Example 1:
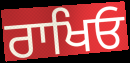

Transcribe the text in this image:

ਰਾਖਿਓ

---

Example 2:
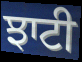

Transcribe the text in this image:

ਝਾਟੀ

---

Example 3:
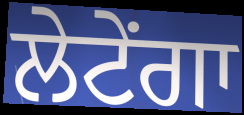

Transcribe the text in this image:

ਲੇਟੇਂਗਾ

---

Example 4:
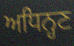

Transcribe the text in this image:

ਅਧਿਨ੍ਹਣ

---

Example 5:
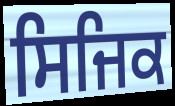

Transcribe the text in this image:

ਸਿਜਿਕ